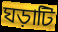
ঘড়াটি